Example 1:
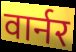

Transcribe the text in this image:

वार्नर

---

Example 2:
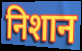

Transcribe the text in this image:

निशान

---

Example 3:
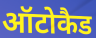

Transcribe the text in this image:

ऑटोकैड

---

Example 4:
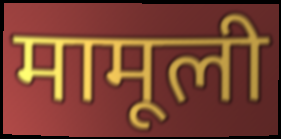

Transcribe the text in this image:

मामूली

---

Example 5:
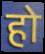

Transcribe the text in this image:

हो